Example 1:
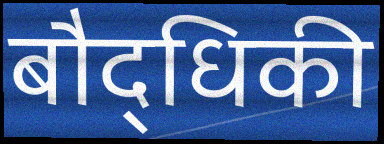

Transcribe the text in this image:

बौद्धिकी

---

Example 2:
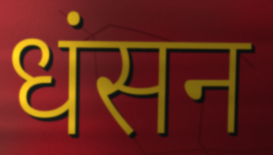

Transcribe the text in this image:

धंसन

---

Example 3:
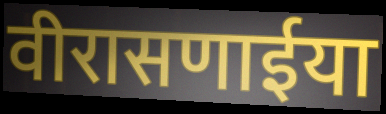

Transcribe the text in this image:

वीरासणाईया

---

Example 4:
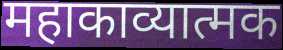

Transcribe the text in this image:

महाकाव्यात्मक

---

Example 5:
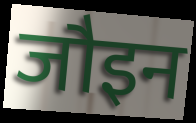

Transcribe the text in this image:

जौइन